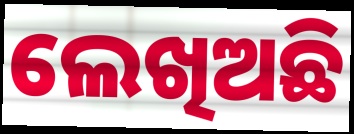
ଲେଖିଅଛି